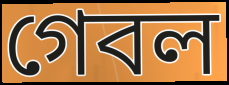
গেবল